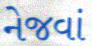
નેજવાં